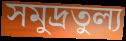
সমুদ্রতুল্য